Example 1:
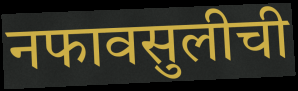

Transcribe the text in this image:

नफावसुलीची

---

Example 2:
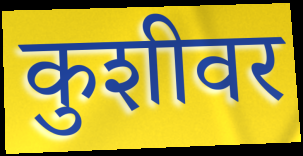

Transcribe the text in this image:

कुशीवर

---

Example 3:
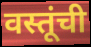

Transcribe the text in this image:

वस्तूंची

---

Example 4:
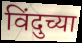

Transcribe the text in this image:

विंदुच्या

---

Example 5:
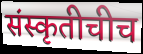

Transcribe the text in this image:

संस्कृतीचीच